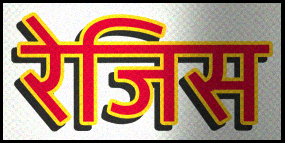
रेजिस